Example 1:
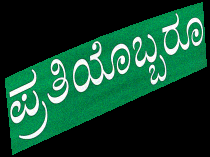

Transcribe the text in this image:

ಪ್ರತಿಯೊಬ್ಬರೂ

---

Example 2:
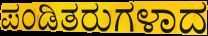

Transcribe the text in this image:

ಪಂಡಿತರುಗಳಾದ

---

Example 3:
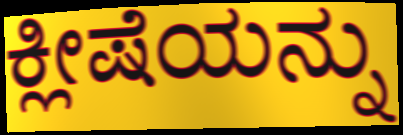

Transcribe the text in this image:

ಕ್ಲೀಷೆಯನ್ನು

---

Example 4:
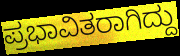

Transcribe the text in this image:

ಪ್ರಭಾವಿತರಾಗಿದ್ದು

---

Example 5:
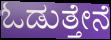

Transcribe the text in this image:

ಓಡುತ್ತೇನೆ